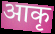
आकृ